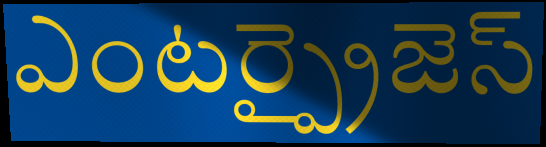
ఎంటర్ప్రైజెస్